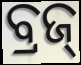
ବ୍ରଜ୍